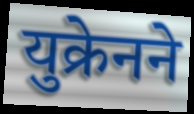
युक्रेनने